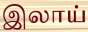
இலாய்